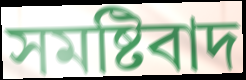
সমষ্টিবাদ